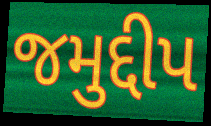
જમુદ્દીપ